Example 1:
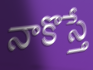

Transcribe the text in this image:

నాకొస్తే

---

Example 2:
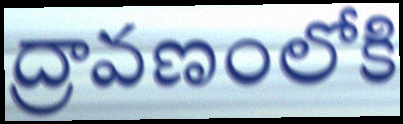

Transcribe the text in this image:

ద్రావణంలోకి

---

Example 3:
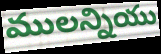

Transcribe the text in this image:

ములన్నియు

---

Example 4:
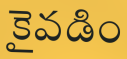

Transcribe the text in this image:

కైవడిం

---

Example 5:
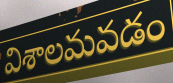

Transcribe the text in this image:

విశాలమవడం